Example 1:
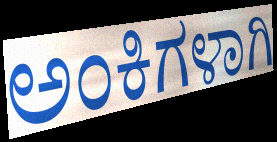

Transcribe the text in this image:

ಅಂಕಿಗಳಾಗಿ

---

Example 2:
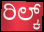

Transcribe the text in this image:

ರಿಲ್ಕ್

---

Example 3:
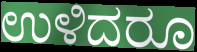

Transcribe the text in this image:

ಉಳಿದರೂ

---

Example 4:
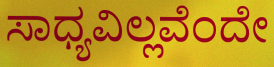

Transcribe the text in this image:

ಸಾಧ್ಯವಿಲ್ಲವೆಂದೇ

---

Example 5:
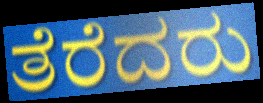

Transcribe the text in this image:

ತೆರೆದರು